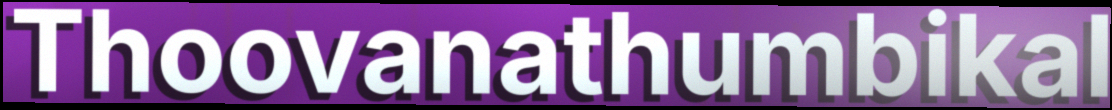
Thoovanathumbikal